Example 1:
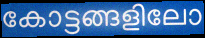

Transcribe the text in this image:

കോട്ടങ്ങളിലോ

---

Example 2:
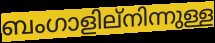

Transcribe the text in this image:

ബംഗാളില്നിന്നുള്ള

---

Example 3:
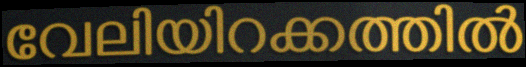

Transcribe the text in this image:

വേലിയിറക്കത്തിൽ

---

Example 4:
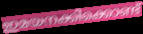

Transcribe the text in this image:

ഇമയനക്കിക്കൊണ്ട്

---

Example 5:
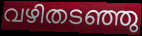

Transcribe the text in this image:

വഴിതടഞ്ഞു